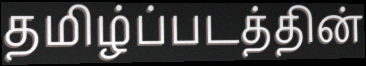
தமிழ்ப்படத்தின்